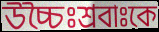
উচ্চৈঃশ্রবাঃকে